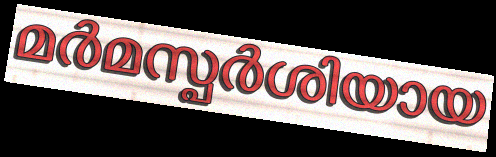
മർമസ്പർശിയായ